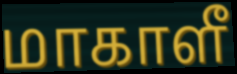
மாகாளீ